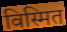
विस्मित